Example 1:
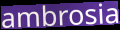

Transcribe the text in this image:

ambrosia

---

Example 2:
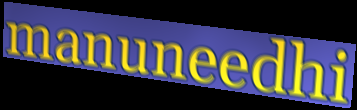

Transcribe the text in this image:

manuneedhi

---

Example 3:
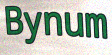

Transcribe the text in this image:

Bynum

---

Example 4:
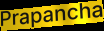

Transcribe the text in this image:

Prapancha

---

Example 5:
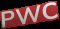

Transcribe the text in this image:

PWC